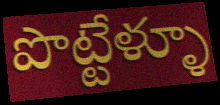
పొట్టేళ్ళూ